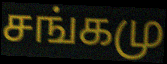
சங்கமு